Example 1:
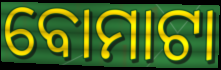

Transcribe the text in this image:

ବୋମାଟା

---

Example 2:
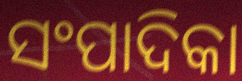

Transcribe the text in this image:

ସଂପାଦିକା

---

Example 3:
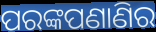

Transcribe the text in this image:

ପରଙ୍କପଣାଣିର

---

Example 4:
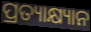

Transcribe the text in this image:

ପ୍ରତ୍ୟାକ୍ଷ୍ୟାନ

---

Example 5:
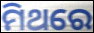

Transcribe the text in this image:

ମିଥରେ